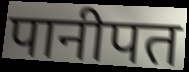
पानीपत